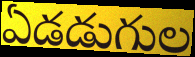
ఏడడుగుల